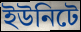
ইউনিটে